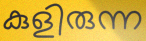
കുളിരുന്ന